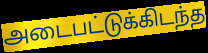
அடைபட்டுக்கிடந்த